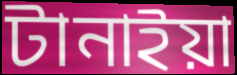
টানাইয়া